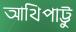
আথিপাট্টু